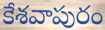
కేశవాపురం